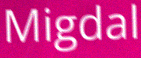
Migdal